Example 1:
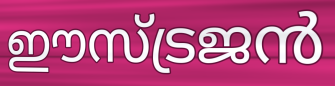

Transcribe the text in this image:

ഈസ്ട്രജൻ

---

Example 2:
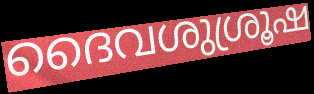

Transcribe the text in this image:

ദൈവശുശ്രൂഷ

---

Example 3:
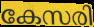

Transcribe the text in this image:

കേസരി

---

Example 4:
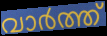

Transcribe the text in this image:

വാർത്ത്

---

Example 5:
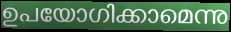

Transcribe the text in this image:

ഉപയോഗിക്കാമെന്നു